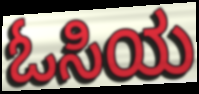
ಓಸಿಯ